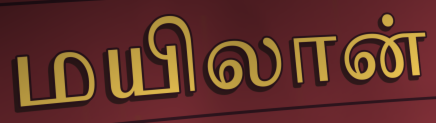
மயிலான்